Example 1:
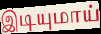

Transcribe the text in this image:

இடியுமாய்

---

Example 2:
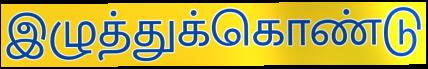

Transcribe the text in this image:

இழுத்துக்கொண்டு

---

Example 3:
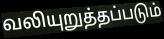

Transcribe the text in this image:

வலியுறுத்தப்படும்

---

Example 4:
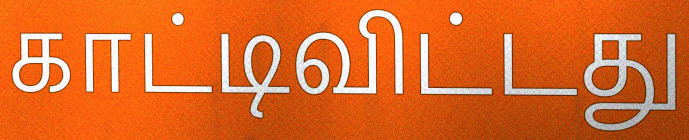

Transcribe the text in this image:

காட்டிவிட்டது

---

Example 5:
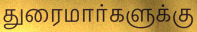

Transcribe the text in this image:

துரைமார்களுக்கு